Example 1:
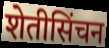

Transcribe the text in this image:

शेतीसिंचन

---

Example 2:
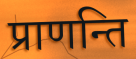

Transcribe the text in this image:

प्राणन्ति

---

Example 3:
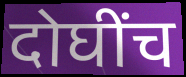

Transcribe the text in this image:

दोघींच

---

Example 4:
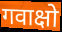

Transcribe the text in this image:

गवाक्षो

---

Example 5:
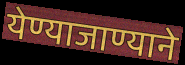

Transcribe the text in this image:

येण्याजाण्याने